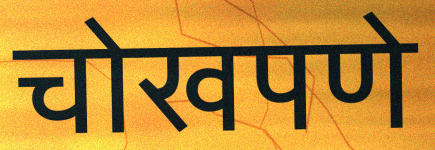
चोखपणे